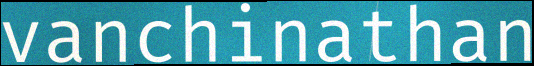
vanchinathan